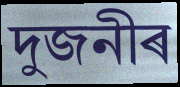
দুজনীৰ